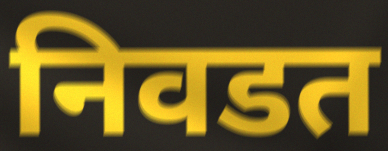
निवडत